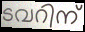
ടവറിന്